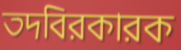
তদবিরকারক